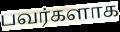
பவர்களாக